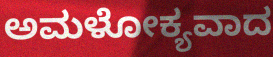
ಅಮಳೋಕ್ಯವಾದ